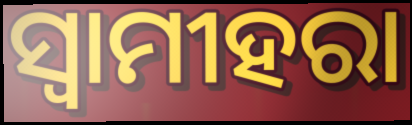
ସ୍ଵାମୀହରା